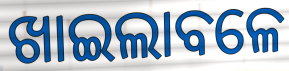
ଖାଇଲାବଳେ